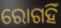
ରୋଗହିଁ